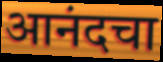
आनंदचा